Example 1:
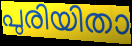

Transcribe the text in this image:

പുരിയിതാ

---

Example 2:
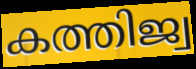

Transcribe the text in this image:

കത്തിജ്വ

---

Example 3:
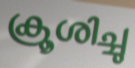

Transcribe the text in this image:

ക്രൂശിച്ചു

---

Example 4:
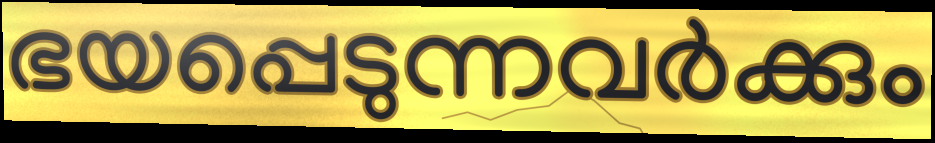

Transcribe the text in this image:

ഭയപ്പെടുന്നവർക്കും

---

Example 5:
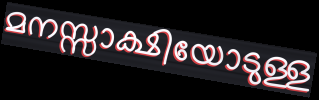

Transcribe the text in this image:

മനസ്സാക്ഷിയോടുള്ള